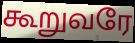
கூறுவரே